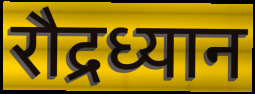
रौद्रध्यान